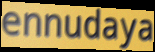
ennudaya